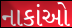
નાકાંઓ